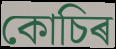
কোচিৰ